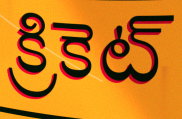
క్రికెట్